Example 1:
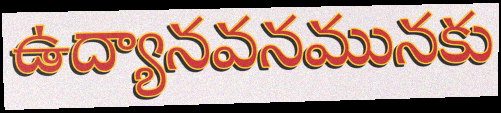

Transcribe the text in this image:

ఉద్యానవనమునకు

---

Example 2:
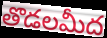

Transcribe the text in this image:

తొడలమీద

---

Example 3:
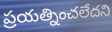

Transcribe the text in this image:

ప్రయత్నించలేదని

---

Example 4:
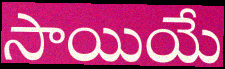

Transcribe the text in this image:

సాయియే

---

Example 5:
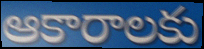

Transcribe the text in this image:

ఆకారాలకు